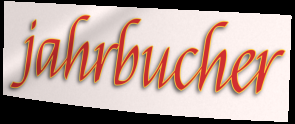
jahrbucher